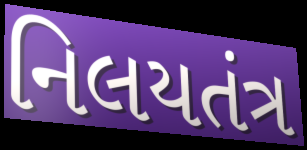
નિલયતંત્ર